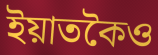
ইয়াতকৈও